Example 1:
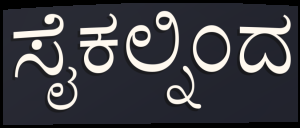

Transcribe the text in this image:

ಸೈಕಲ್ನಿಂದ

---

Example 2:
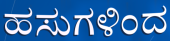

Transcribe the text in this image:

ಹಸುಗಳಿಂದ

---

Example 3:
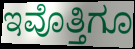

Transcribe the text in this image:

ಇವೊತ್ತಿಗೂ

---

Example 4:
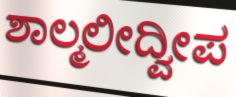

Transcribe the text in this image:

ಶಾಲ್ಮಲೀದ್ವೀಪ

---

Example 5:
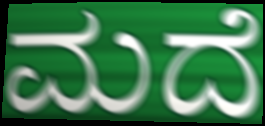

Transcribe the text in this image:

ಮದೆ